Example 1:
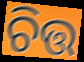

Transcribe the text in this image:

ଚିତ୍ତ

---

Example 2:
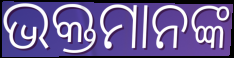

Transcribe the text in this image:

ଭକ୍ତମାନଙ୍କ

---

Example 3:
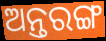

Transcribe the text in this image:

ଅନ୍ତରଙ୍ଗ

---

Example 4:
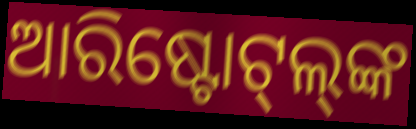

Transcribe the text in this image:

ଆରିଷ୍ଟୋଟ୍‌ଲ୍‌ଙ୍କ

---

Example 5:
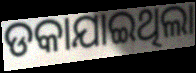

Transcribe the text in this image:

ଡକାଯାଇଥିଲା